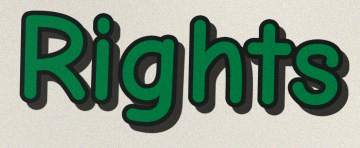
Rights